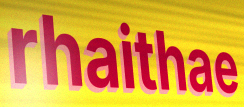
rhaithae